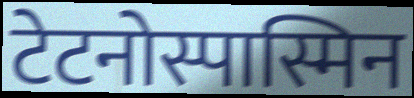
टेटनोस्पास्मिन